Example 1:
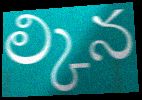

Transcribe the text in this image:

ల్కిన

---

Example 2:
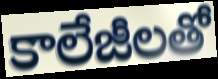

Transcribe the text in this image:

కాలేజీలతో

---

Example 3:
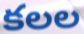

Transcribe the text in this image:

కలల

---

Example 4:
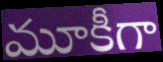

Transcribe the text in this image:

మూకీగా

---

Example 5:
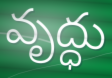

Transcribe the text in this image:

వృద్ధు